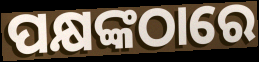
ପକ୍ଷଙ୍କଠାରେ